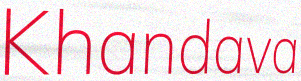
Khandava